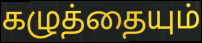
கழுத்தையும்